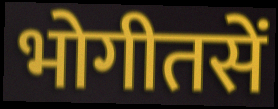
भोगीतसें